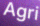
Agri